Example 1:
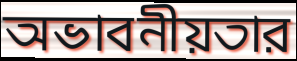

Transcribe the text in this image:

অভাবনীয়তার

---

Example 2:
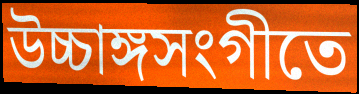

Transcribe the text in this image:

উচ্চাঙ্গসংগীতে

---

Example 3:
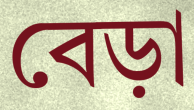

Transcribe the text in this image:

বেড়া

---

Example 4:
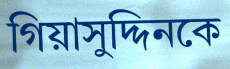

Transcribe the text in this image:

গিয়াসুদ্দিনকে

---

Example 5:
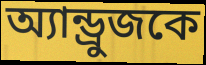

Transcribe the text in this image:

অ্যান্ড্রুজকে